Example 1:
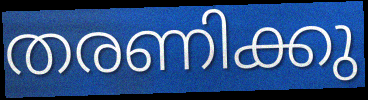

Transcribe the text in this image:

തരണിക്കു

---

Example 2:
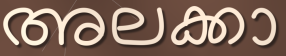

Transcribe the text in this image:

അലക്കാ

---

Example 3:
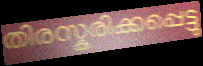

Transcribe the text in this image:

തിരസ്കരിക്കപ്പെട്ടു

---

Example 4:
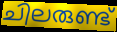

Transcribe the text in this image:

ചിലരുണ്ട്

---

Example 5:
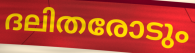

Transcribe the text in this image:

ദലിതരോടും